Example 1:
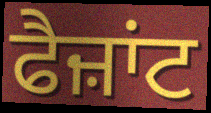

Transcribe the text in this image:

ਫੈਜ਼ਾਂਟ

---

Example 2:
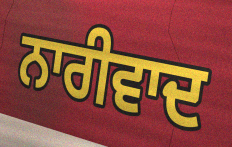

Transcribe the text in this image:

ਨਾਰੀਵਾਦ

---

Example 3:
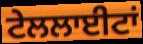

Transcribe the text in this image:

ਟੇਲਲਾਈਟਾਂ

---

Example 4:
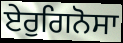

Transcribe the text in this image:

ਏਰੁਗਿਨੋਸਾ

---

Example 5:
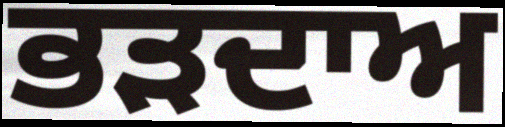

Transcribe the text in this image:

ਭੜਦਾਅ